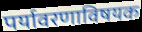
पर्यावरणाविषयक